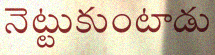
నెట్టుకుంటాడు